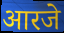
आरजे